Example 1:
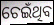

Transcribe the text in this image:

ଚେଇଁଥିବ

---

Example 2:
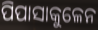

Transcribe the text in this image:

ପିପାସାକୁଳେନ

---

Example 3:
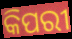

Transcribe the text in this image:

କିପରୀ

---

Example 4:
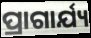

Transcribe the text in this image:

ପ୍ରାଗାର୍ଯ୍ୟ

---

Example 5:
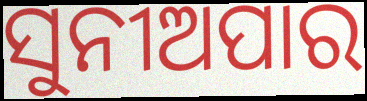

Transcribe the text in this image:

ସୁନୀଅପାର